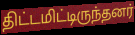
திட்டமிட்டிருந்தனர்